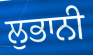
ਲੁਭਾਨੀ